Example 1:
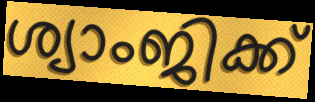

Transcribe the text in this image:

ശ്യാംജിക്ക്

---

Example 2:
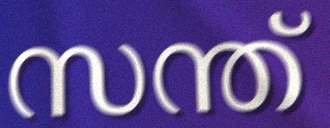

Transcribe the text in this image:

സന്ത്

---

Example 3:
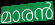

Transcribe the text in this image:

മാരൻ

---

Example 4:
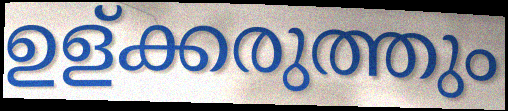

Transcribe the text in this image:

ഉള്ക്കരുത്തും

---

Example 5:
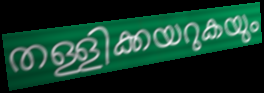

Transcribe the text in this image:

തള്ളിക്കയറുകയും